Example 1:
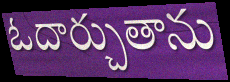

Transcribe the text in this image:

ఓదార్చుతాను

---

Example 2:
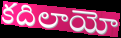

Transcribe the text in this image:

కదిలాయో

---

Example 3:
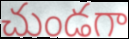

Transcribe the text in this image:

చుండగా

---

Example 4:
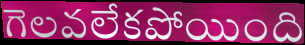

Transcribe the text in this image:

గెలవలేకపోయింది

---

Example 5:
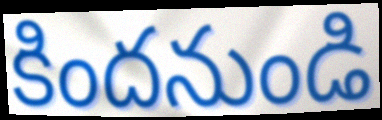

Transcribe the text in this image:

కిందనుండి